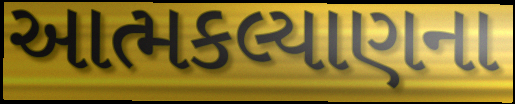
આત્મકલ્યાણના